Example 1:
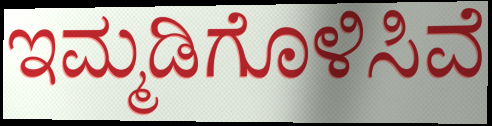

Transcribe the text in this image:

ಇಮ್ಮಡಿಗೊಳಿಸಿವೆ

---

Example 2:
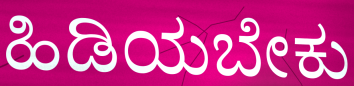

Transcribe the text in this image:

ಹಿಡಿಯಬೇಕು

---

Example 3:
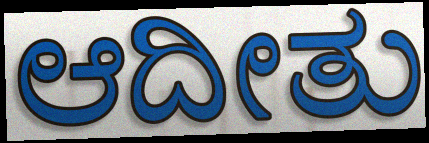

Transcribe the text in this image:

ಆದೀತು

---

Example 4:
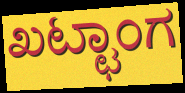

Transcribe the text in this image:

ಖಟ್ಟಾಂಗ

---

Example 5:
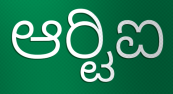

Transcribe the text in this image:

ಆರ್‍ಟಿಐ